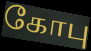
கோபு